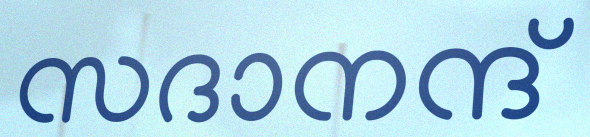
സദാനന്ദ്